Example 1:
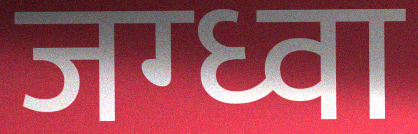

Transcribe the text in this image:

जग्ध्वा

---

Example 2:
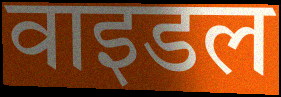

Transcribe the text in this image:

वाइडल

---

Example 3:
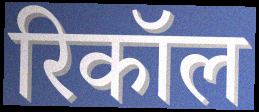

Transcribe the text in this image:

रिकॉल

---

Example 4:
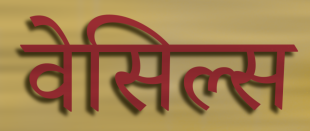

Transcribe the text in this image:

वेसिल्स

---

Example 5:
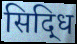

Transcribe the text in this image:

सिद्धि